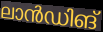
ലാൻഡിങ്